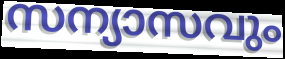
സന്യാസവും